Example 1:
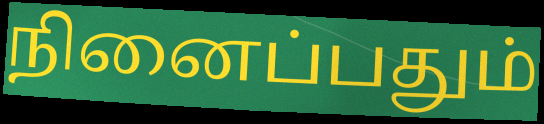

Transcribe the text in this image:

நினைப்பதும்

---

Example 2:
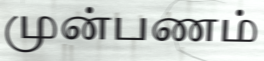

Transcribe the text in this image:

முன்பணம்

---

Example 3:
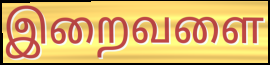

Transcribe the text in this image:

இறைவளை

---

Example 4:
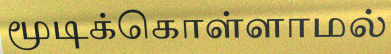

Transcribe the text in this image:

மூடிக்கொள்ளாமல்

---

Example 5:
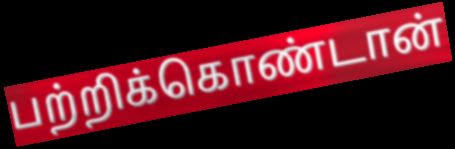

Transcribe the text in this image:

பற்றிக்கொண்டான்